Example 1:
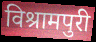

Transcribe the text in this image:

विश्रामपुरी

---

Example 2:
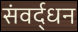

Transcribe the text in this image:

संवर्द्धन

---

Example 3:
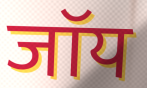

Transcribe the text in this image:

जॉय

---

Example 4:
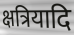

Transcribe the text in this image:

क्षत्रियादि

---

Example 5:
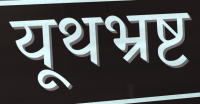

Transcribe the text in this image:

यूथभ्रष्ट